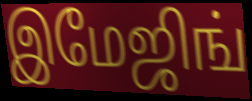
இமேஜிங்